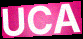
UCA